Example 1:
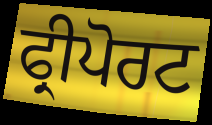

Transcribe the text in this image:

ਫ੍ਰੀਪੋਰਟ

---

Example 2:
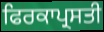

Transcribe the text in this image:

ਫਿਰਕਾਪ੍ਰਸਤੀ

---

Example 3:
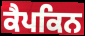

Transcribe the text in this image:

ਕੈਪਕਿਨ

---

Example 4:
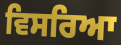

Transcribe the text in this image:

ਵਿਸਰਿਆ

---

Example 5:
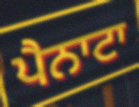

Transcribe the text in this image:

ਪੈਨਾਟਾ